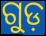
ଗୁଡ଼